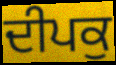
ਦੀਪਕੁ